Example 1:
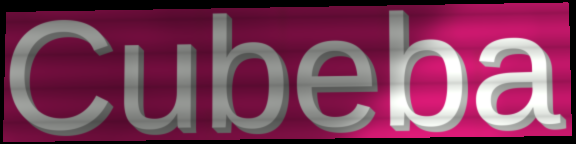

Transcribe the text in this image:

Cubeba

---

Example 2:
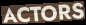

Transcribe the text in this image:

ACTORS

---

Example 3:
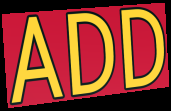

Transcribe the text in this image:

ADD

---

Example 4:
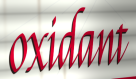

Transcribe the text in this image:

oxidant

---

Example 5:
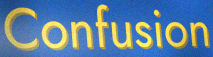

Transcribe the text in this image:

Confusion